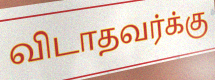
விடாதவர்க்கு